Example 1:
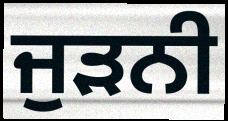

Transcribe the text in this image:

ਜੁੜਨੀ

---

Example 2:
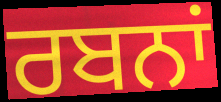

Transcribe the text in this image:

ਰਬਨਾਂ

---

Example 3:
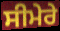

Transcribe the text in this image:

ਸੀਮੇਰੇ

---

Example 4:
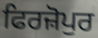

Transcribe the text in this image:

ਫਿਰਜ਼ੋਪੁਰ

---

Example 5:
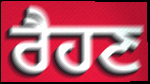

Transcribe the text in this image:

ਰੈਹਣ